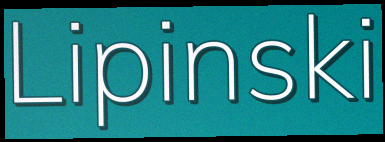
Lipinski